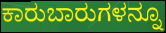
ಕಾರುಬಾರುಗಳನ್ನೂ